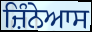
ਜ਼ਿੰਨੇਆਸ